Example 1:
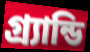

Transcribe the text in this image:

গ্র্যান্ডি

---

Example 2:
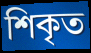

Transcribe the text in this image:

শিকৃত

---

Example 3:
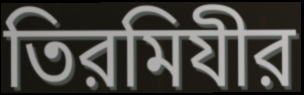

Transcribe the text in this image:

তিরমিযীর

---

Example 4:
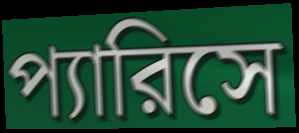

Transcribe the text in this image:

প্যারিসে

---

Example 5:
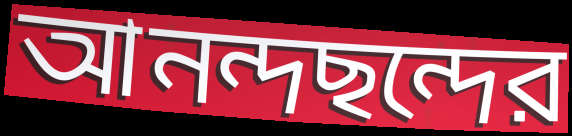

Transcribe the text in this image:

আনন্দছন্দের